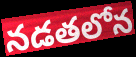
నడతలోన